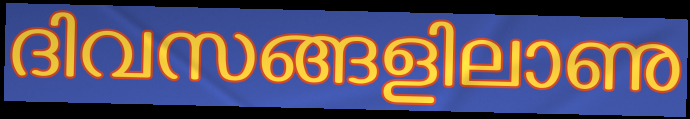
ദിവസങ്ങളിലാണു